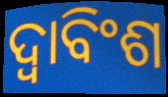
ଦ୍ଵାବିଂଶ